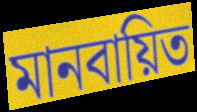
মানবায়িত